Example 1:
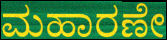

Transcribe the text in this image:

ಮಹಾರಣೇ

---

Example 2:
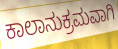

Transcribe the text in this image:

ಕಾಲಾನುಕ್ರಮವಾಗಿ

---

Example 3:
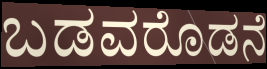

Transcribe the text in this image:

ಬಡವರೊಡನೆ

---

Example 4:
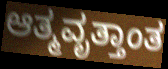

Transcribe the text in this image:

ಆತ್ಮವೃತ್ತಾಂತ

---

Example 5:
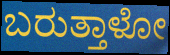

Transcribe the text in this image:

ಬರುತ್ತಾಳೋ